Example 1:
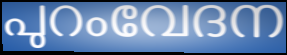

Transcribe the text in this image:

പുറംവേദന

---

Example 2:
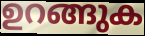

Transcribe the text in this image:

ഉറങ്ങുക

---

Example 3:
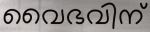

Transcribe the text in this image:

വൈഭവിന്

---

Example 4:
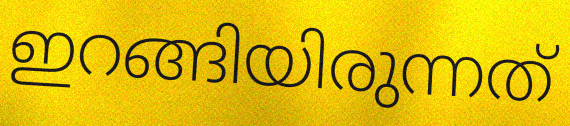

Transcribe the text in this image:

ഇറങ്ങിയിരുന്നത്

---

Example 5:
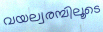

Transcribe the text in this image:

വയല്വരമ്പിലൂടെ